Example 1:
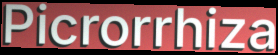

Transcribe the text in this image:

Picrorrhiza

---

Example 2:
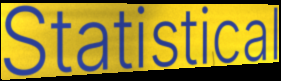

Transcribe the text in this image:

Statistical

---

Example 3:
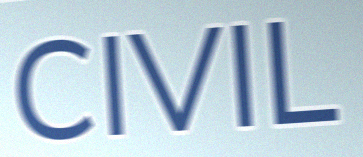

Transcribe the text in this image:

CIVIL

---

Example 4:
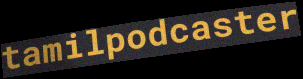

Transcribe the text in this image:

tamilpodcaster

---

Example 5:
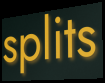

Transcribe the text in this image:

splits